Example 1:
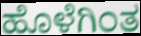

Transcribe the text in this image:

ಹೊಳೆಗಿಂತ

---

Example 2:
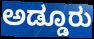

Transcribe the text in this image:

ಅಡ್ಡೂರು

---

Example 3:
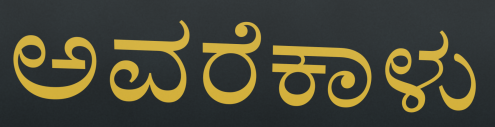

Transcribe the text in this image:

ಅವರೆಕಾಳು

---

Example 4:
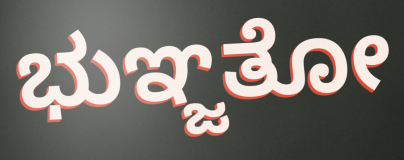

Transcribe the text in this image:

ಭುಞ್ಜತೋ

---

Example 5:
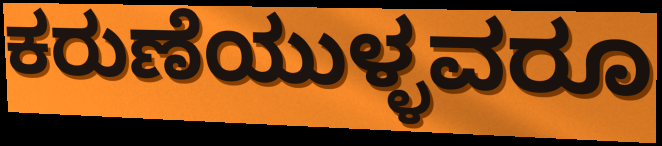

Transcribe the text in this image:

ಕರುಣೆಯುಳ್ಳವರೂ